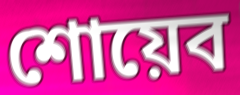
শোয়েব